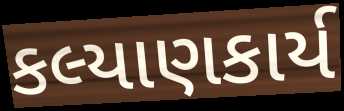
કલ્યાણકાર્ય